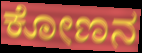
ಕೋಣನ